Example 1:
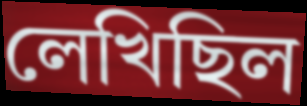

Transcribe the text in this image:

লেখিছিল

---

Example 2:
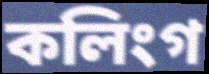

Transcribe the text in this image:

কলিংগ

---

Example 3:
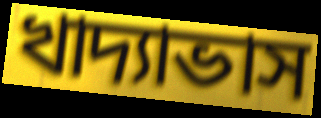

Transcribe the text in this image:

খাদ্যাভাস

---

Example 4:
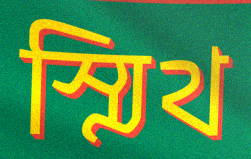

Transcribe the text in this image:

স্মিথ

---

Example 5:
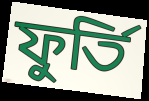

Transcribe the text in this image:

ফুৰ্তি